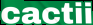
cactii